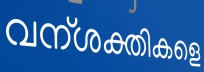
വന്ശക്തികളെ